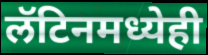
लॅटिनमध्येही